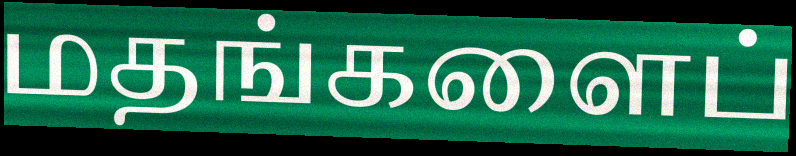
மதங்களைப்